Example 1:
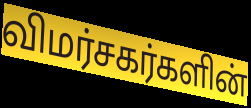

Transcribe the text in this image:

விமர்சகர்களின்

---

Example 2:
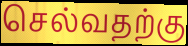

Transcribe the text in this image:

செல்வதற்கு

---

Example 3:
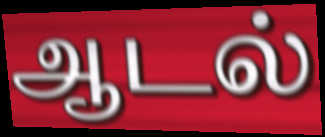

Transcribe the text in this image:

ஆடல்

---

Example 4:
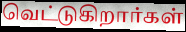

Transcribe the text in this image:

வெட்டுகிறார்கள்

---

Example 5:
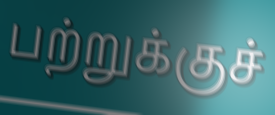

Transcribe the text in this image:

பற்றுக்குச்